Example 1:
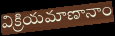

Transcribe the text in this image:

విక్రియమాణానాం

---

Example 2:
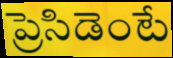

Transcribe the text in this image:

ప్రెసిడెంటే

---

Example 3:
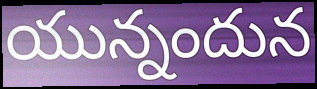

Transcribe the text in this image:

యున్నందున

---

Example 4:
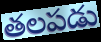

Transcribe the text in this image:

తలపడు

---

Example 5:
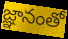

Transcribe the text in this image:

జ్ఞానంతో